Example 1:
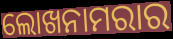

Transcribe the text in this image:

ଲୋଖନାମରାର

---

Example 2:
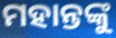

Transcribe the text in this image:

ମହାନ୍ତଙ୍କୁ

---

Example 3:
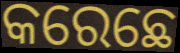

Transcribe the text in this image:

କରେଛେ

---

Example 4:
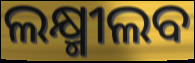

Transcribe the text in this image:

ଲକ୍ଷ୍ମୀଲବ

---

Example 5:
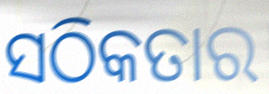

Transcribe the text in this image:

ସଠିକତାର